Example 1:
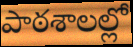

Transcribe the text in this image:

పాఠశాలల్లో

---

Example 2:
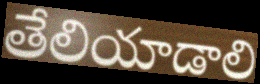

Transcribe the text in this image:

తేలియాడాలి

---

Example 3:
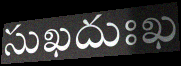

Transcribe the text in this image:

సుఖదుఃఖ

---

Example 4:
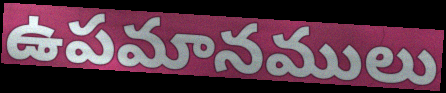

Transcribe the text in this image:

ఉపమానములు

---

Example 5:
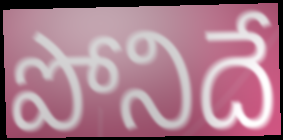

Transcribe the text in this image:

పోనిదే